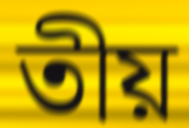
তীয়